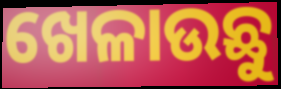
ଖେଳାଉଛୁ